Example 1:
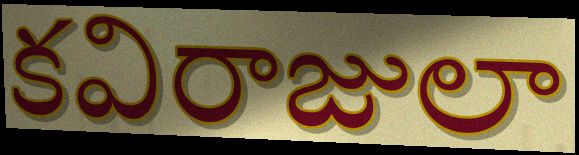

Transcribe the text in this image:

కవిరాజులా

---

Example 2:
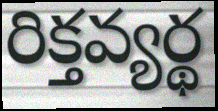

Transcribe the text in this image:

రిక్తవ్యర్థ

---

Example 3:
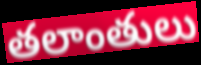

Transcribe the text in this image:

తలాంతులు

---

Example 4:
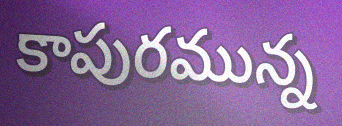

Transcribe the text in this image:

కాపురమున్న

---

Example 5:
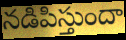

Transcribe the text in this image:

నడిపిస్తుందా